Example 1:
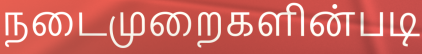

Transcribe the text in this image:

நடைமுறைகளின்படி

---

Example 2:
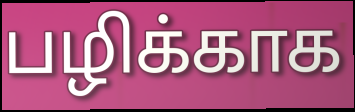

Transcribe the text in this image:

பழிக்காக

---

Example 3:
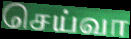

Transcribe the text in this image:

செய்வா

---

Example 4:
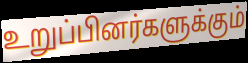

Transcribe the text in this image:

உறுப்பினர்களுக்கும்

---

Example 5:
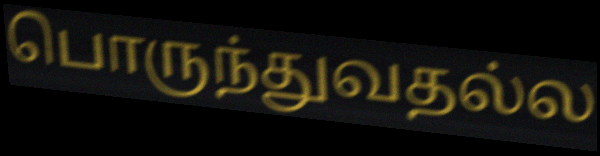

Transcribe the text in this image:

பொருந்துவதல்ல